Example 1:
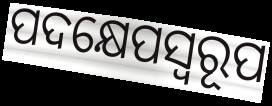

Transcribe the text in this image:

ପଦକ୍ଷେପସ୍ଵରୂପ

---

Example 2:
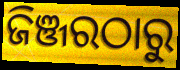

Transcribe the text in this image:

ଜିଞ୍ଜରଠାରୁ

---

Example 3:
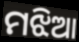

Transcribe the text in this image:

ମଝିଆ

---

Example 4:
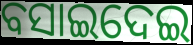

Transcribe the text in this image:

ବସାଇଦେଇ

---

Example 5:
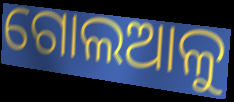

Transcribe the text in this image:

ଗୋଲଆଳୁ